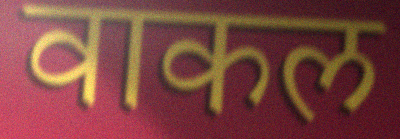
वाकल